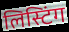
लिस्‍टिंग